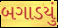
બગાડયું